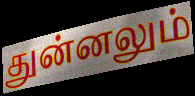
துன்னலும்